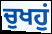
ਚੁਖਹੁਂ